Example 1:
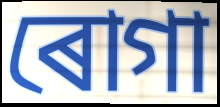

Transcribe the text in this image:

ৰোগা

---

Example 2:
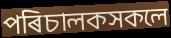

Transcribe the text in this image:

পৰিচালকসকলে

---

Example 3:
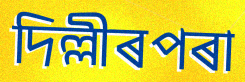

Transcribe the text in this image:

দিল্লীৰপৰা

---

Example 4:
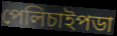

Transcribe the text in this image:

পেলিচাইপডা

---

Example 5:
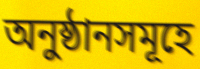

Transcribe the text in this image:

অনুষ্ঠানসমূহে